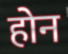
होन